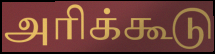
அரிக்கூடு